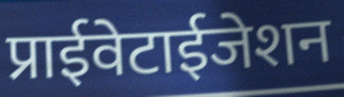
प्राईवेटाईजेशन